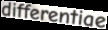
differentiae